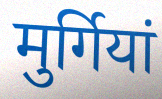
मुर्गियां